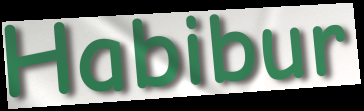
Habibur